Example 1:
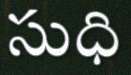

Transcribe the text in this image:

సుధి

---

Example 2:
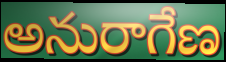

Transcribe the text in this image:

అనురాగేణ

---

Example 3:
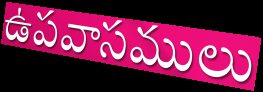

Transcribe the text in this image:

ఉపవాసములు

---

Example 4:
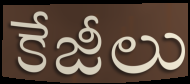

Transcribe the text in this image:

కేజీలు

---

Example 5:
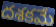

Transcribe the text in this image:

దశకమే